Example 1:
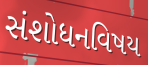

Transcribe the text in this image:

સંશોધનવિષય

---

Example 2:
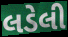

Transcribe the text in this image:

લડેલી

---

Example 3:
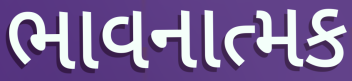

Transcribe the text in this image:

ભાવનાત્મક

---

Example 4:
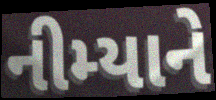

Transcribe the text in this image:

નીમ્યાને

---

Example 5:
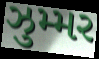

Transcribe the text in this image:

ઝુમ્મર